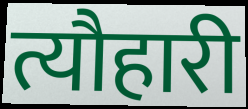
त्यौहारी